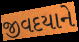
જીવદયાને